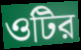
ওটির